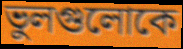
ভুলগুলোকে